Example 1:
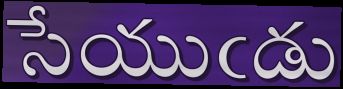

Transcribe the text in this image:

సేయుఁడు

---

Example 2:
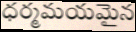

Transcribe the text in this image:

ధర్మమయమైన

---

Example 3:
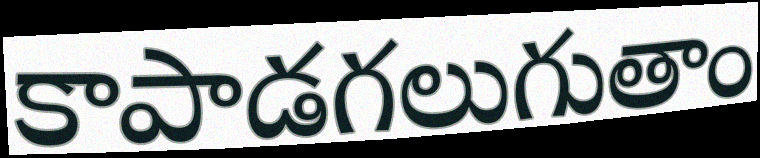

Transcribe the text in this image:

కాపాడగలుగుతాం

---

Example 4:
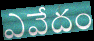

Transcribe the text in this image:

ఎవేదం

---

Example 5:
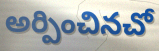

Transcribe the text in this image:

అర్పించినచో